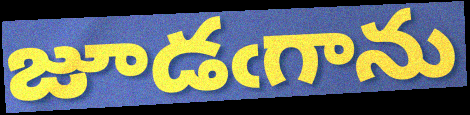
జూడఁగాను